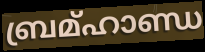
ബ്രമ്ഹാണ്ഡ